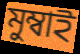
মুম্বাই